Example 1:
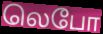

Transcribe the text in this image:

லெபோ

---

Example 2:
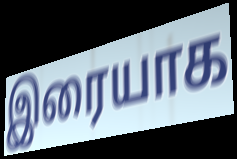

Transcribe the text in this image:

இரையாக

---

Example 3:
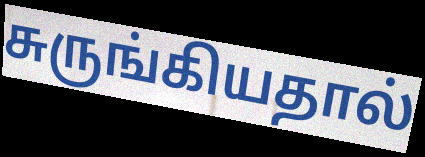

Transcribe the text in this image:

சுருங்கியதால்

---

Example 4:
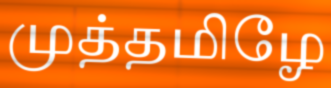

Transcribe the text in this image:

முத்தமிழே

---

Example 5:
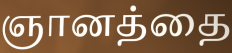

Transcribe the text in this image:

ஞானத்தை